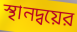
স্থানদ্বয়ের